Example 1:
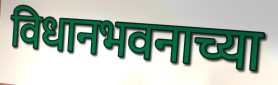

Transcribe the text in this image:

विधानभवनाच्या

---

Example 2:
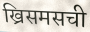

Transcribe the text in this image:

ख्रिसमसची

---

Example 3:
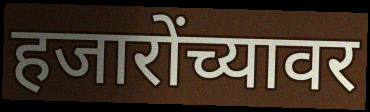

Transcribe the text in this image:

हजारोंच्यावर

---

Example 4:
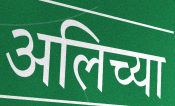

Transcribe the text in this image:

अलिच्या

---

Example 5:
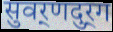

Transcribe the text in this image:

सुवर्णदुर्ग